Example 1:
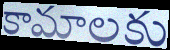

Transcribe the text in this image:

కామాలకు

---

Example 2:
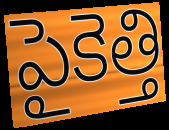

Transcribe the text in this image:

పైకెత్తి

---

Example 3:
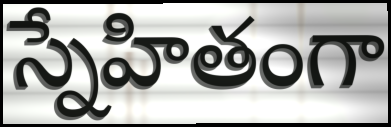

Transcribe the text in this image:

స్నేహితంగా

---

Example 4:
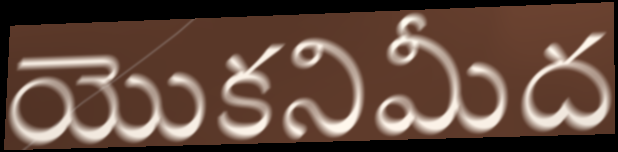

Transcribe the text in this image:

యొకనిమీద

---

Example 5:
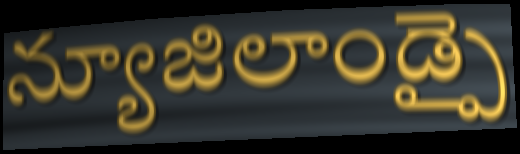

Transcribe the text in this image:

న్యూజిలాండ్పై